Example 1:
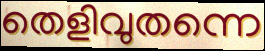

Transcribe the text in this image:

തെളിവുതന്നെ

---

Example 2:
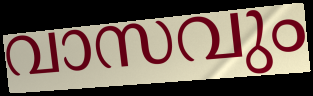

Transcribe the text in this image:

വാസവും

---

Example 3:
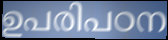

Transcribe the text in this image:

ഉപരിപഠന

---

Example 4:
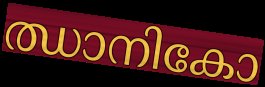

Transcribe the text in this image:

ഝാനികോ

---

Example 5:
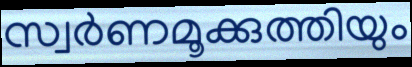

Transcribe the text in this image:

സ്വർണമൂക്കുത്തിയും